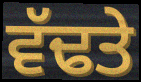
ਵੱਢਤੇ